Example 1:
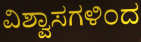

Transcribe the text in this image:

ವಿಶ್ವಾಸಗಳಿಂದ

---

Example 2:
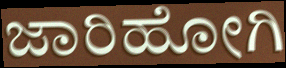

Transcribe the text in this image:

ಜಾರಿಹೋಗಿ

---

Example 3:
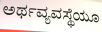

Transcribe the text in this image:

ಅರ್ಥವ್ಯವಸ್ಥೆಯೂ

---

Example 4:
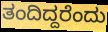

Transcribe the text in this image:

ತಂದಿದ್ದರೆಂದು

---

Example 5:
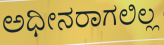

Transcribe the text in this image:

ಅಧೀನರಾಗಲಿಲ್ಲ